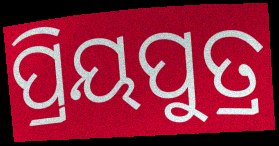
ପ୍ରିୟପୁତ୍ର